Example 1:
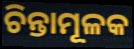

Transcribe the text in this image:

ଚିନ୍ତାମୂଳକ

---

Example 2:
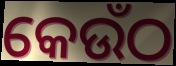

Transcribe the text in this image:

କେଉଁଠ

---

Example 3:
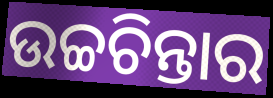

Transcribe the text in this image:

ଉଚ୍ଚଚିନ୍ତାର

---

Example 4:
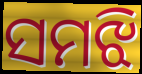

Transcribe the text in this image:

ସମଝି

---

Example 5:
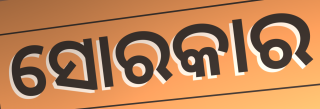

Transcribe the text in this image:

ସୋରକାର